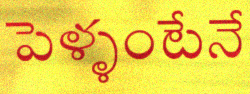
పెళ్ళంటేనే